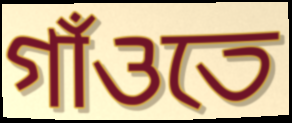
গাঁওতে